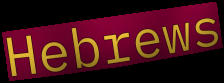
Hebrews